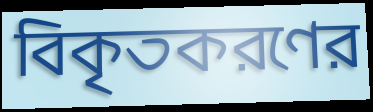
বিকৃতকরণের